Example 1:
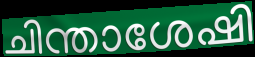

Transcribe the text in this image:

ചിന്താശേഷി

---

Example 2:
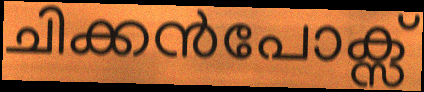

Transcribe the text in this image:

ചിക്കൻപോക്സ്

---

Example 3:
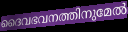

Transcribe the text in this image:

ദൈവഭവനത്തിനുമേൽ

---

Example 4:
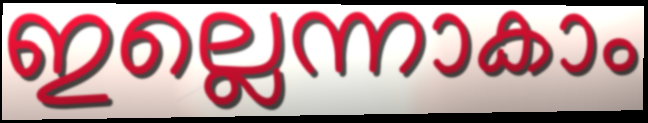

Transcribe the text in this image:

ഇല്ലെന്നാകാം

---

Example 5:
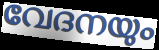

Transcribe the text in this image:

വേദനയും